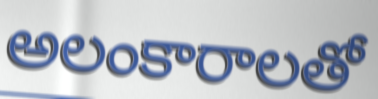
అలంకారాలతో